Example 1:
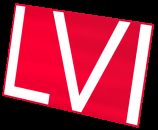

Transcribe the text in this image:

LVI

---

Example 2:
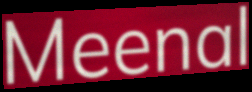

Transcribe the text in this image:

Meenal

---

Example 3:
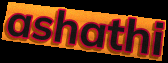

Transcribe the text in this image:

ashathi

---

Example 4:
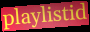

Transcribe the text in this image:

playlistid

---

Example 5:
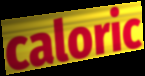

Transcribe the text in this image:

caloric